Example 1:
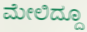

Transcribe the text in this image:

ಮೇಲಿದ್ದೂ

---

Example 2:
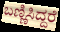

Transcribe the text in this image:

ಬಣ್ಣಿಸಿದ್ದರೆ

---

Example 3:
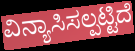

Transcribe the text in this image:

ವಿನ್ಯಾಸಿಸಲ್ಪಟ್ಟಿದೆ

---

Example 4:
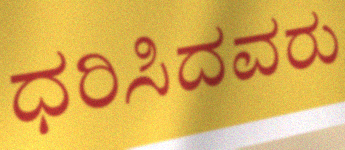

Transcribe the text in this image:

ಧರಿಸಿದವರು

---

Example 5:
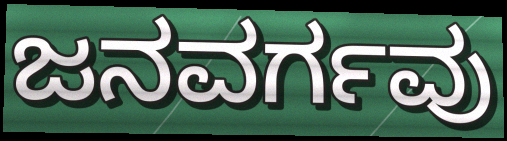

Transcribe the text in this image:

ಜನವರ್ಗವು